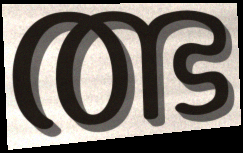
ത്ഭ